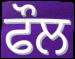
ਫੌਲ